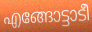
എങ്ങോട്ടാടീ